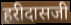
हरीदासजी